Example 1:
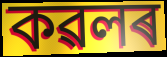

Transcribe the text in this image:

কৱলৰ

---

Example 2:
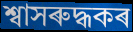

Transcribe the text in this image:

শ্বাসৰুদ্ধকৰ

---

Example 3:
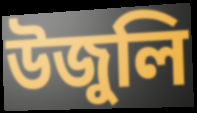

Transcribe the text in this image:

উজুলি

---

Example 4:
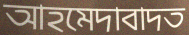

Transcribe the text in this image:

আহমেদাবাদত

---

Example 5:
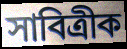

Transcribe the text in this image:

সাবিত্ৰীক